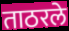
ताठरले